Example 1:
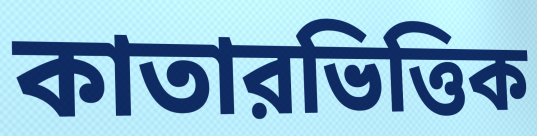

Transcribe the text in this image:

কাতারভিত্তিক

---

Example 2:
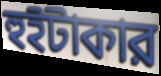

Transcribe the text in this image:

হুইটাকার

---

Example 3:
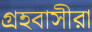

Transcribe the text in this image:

গ্রহবাসীরা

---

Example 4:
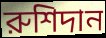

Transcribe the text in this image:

রুশিদান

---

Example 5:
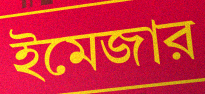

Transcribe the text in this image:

ইমেজার